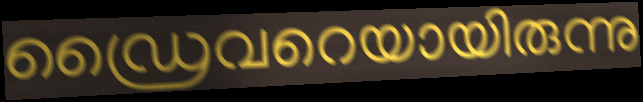
ഡ്രൈവറെയായിരുന്നു